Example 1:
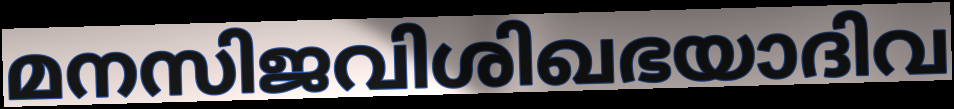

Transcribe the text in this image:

മനസിജവിശിഖഭയാദിവ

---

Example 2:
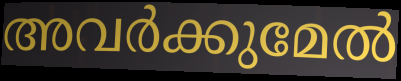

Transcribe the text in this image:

അവർക്കുമേൽ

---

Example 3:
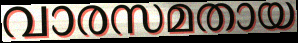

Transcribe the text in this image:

വാരസമതായ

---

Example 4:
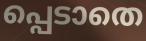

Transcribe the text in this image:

പ്പെടാതെ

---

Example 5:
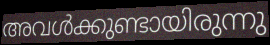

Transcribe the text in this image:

അവൾക്കുണ്ടായിരുന്നു